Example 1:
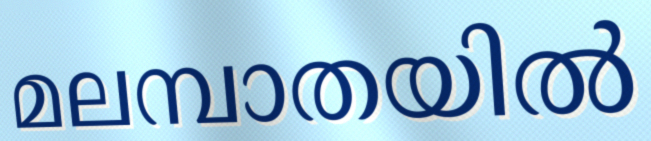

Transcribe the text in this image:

മലമ്പാതയിൽ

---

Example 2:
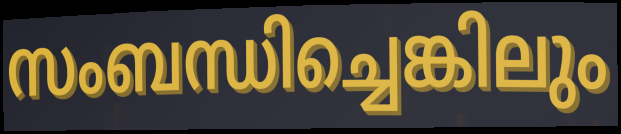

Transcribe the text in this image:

സംബന്ധിച്ചെങ്കിലും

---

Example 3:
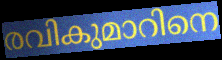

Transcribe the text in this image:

രവികുമാറിനെ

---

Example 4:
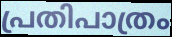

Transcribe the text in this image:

പ്രതിപാത്രം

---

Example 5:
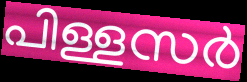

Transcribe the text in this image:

പിള്ളസർ